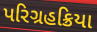
પરિગ્રહક્રિયા